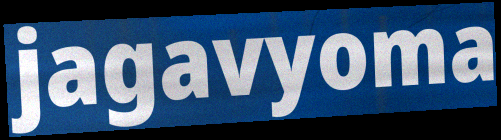
jagavyoma